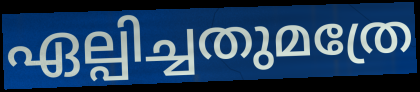
ഏല്പിച്ചതുമത്രേ